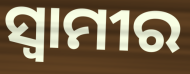
ସ୍ଵାମୀର